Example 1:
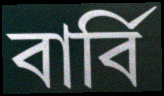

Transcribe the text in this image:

বার্বি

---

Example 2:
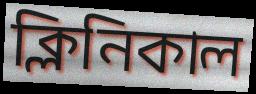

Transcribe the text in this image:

ক্লিনিকাল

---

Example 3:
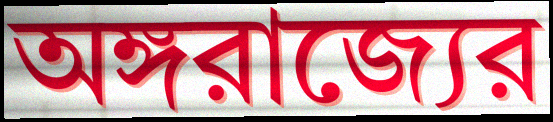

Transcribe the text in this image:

অঙ্গরাজ্যের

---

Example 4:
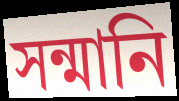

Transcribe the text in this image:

সন্মানি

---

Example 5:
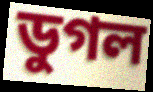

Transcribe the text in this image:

ডুগল